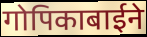
गोपिकाबाईने